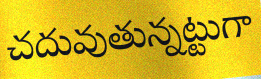
చదువుతున్నట్టుగా